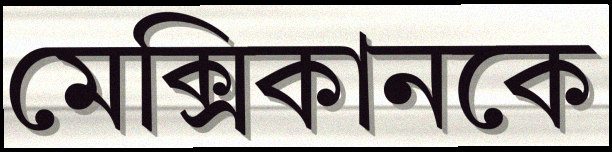
মেক্সিকানকে